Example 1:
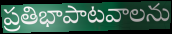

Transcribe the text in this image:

ప్రతిభాపాటవాలను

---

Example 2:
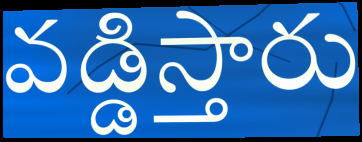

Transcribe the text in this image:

వడ్డిస్తారు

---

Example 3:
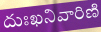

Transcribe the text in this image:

దుఃఖనివారిణి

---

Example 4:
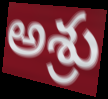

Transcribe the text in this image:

అశ్రు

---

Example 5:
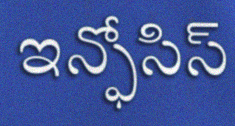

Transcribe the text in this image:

ఇన్ఫోసిస్